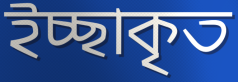
ইচ্ছাকৃত